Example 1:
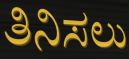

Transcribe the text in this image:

ತಿನಿಸಲು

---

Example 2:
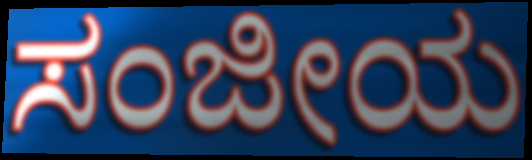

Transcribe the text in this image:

ಸಂಜೀಯ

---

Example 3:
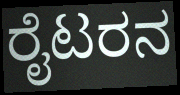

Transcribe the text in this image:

ರೈಟರನ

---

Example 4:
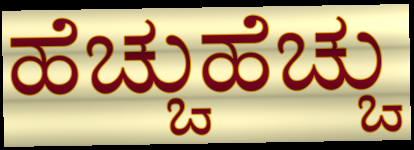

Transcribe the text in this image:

ಹೆಚ್ಚುಹೆಚ್ಚು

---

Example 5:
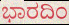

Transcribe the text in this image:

ಭಾರದಿಂ